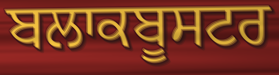
ਬਲਾਕਬੂਸਟਰ